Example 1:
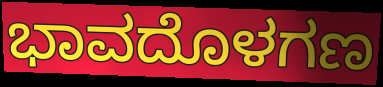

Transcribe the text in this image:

ಭಾವದೊಳಗಣ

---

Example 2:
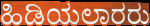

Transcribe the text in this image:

ಹಿಡಿಯಲಾರರು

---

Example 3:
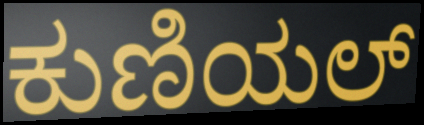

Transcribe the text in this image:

ಕುಣಿಯಲ್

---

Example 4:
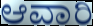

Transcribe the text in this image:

ಆವಾರಿ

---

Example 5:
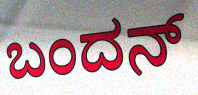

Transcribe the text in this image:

ಬಂದನ್